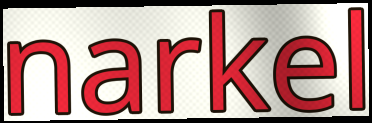
narkel